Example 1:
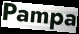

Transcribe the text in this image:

Pampa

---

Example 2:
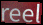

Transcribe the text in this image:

reel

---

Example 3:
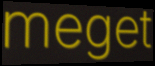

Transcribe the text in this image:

meget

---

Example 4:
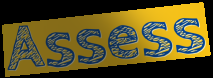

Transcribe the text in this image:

Assess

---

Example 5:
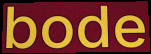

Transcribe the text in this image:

bode